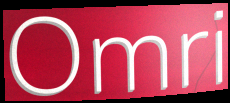
Omri